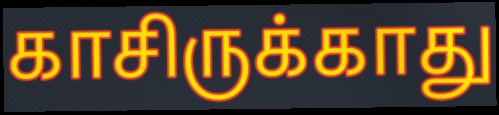
காசிருக்காது